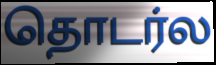
தொடர்ல